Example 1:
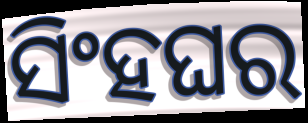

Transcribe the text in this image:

ସିଂହଘର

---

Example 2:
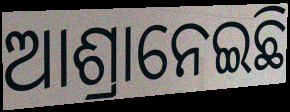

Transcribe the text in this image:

ଆଶ୍ରାନେଇଛି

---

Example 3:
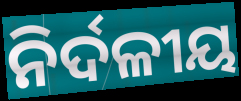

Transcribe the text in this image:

ନିର୍ଦଳୀୟ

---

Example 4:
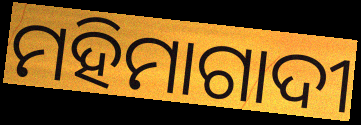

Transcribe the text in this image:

ମହିମାଗାଦୀ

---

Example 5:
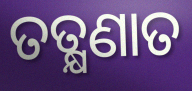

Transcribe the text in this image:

ତତ୍କ୍ଷଣାତ